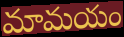
మామయం